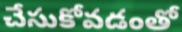
చేసుకోవడంతో